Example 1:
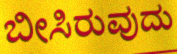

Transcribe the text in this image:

ಬೀಸಿರುವುದು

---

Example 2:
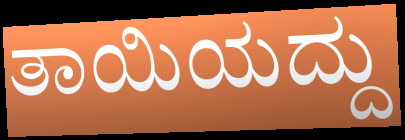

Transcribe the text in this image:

ತಾಯಿಯದ್ದು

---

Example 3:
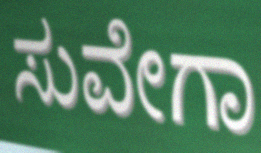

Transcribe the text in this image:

ಸುವೇಗಾ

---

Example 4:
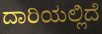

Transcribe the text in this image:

ದಾರಿಯಲ್ಲಿದೆ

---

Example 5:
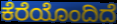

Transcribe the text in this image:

ಕೆರೆಯೊಂದಿದೆ